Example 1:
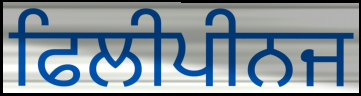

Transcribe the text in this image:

ਫਿਲੀਪੀਨਜ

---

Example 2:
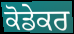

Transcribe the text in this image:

ਕੋਡੇਕਰ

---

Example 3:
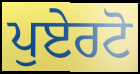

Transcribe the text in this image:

ਪੁਏਰਟੋ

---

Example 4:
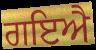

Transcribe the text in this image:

ਗਇਐ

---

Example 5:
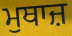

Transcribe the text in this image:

ਮੁਥਾਜ਼